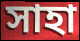
সাহা